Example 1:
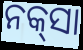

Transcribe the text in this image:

ନକ୍‍ସା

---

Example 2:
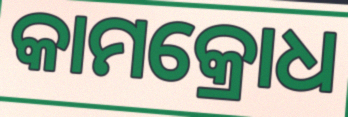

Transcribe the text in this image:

କାମକ୍ରୋଧ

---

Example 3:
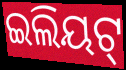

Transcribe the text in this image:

ଇଲିୟଟ୍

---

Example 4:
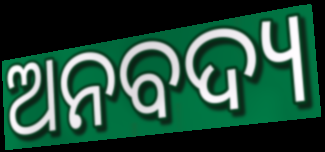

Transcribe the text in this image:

ଅନବଦ୍ୟ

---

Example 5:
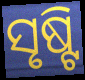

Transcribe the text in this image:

ସୃଷ୍ଟି